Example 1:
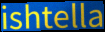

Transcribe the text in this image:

ishtella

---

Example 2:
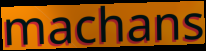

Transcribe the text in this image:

machans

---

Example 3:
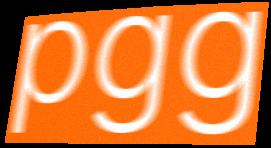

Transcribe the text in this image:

pgg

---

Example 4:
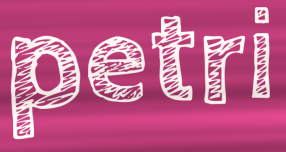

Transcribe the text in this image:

petri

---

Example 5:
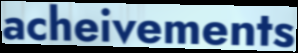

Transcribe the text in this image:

acheivements